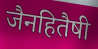
जैनहितैषी